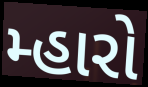
મ્હારો